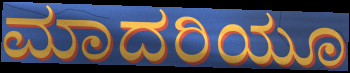
ಮಾದರಿಯೂ